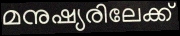
മനുഷ്യരിലേക്ക്